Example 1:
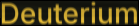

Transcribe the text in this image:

Deuterium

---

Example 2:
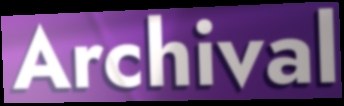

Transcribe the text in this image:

Archival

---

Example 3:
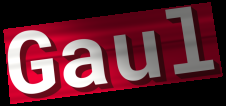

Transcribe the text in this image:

Gaul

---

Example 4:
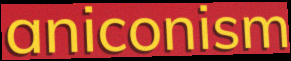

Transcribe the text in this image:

aniconism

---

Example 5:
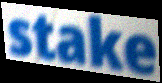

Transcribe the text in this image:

stake